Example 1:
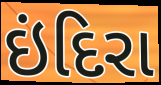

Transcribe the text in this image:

ઇંદિરા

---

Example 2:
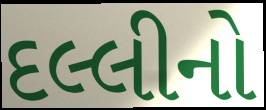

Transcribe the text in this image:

દલ્લીનો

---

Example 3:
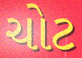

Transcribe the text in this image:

ચોટ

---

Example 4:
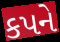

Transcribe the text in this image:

કપને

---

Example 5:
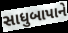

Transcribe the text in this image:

સાધુબાપાને